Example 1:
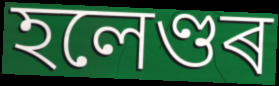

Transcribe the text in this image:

হলেণ্ডৰ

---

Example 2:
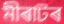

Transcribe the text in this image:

মীৰাটৰ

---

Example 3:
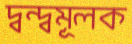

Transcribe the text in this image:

দ্বন্দ্বমূলক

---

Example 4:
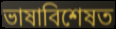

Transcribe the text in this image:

ভাষাবিশেষত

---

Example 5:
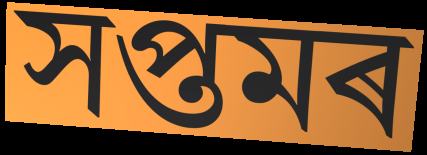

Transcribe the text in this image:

সপ্তমৰ